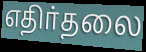
எதிர்தலை